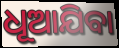
ଧୂଆଯିବା